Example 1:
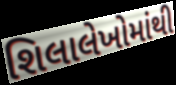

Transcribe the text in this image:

શિલાલેખોમાંથી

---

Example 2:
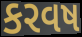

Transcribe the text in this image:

કરવષ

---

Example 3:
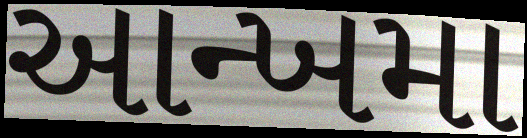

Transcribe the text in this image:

આન્ખમા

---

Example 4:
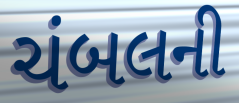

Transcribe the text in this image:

ચંબલની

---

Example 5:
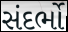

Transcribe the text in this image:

સંદર્ભો